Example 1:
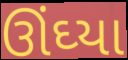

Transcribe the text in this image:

ઊંઘ્યા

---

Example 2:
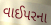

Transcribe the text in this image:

વાઈપરના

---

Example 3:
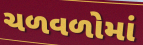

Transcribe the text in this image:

ચળવળોમાં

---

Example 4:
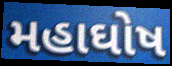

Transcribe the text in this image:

મહાઘોષ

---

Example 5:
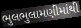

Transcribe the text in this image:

ભુલભુલામણીમાંથી